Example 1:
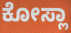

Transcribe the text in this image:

ಕೋಸ್ಲಾ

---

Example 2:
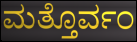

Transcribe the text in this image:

ಮತ್ತೊರ್ವಂ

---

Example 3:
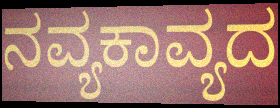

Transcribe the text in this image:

ನವ್ಯಕಾವ್ಯದ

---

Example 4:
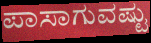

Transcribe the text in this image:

ಪಾಸಾಗುವಷ್ಟು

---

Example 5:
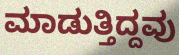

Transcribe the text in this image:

ಮಾಡುತ್ತಿದ್ದವು